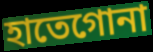
হাতেগোনা